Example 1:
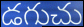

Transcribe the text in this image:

డగుచు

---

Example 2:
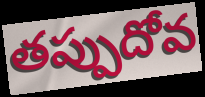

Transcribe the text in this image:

తప్పుదోవ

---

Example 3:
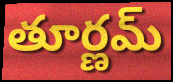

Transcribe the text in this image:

తూర్ణమ్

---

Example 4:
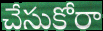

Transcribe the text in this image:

చేసుకోరా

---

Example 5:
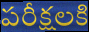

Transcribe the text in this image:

పరీక్షలకి